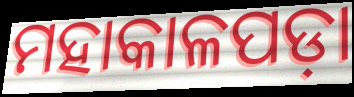
ମହାକାଳପଡ଼ା